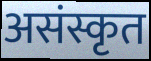
असंस्कृत